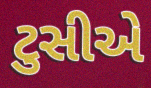
ટુસીએ